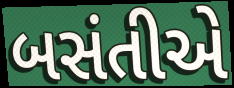
બસંતીએ